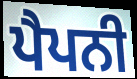
ਪੈਪਨੀ